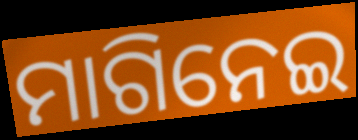
ମାଗିନେଇ